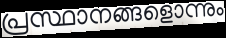
പ്രസ്ഥാനങ്ങളൊന്നും